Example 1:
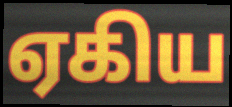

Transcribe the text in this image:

ஏகிய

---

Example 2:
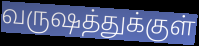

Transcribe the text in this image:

வருஷத்துக்குள்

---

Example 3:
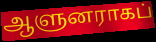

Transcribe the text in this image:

ஆளுனராகப்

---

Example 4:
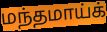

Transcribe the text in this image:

மந்தமாய்க்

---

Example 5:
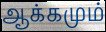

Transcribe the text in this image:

ஆக்கமும்